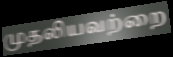
முதலியவற்றை